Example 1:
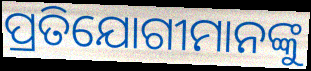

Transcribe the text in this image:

ପ୍ରତିଯୋଗୀମାନଙ୍କୁ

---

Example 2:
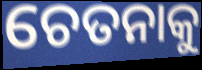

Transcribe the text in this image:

ଚେତନାକୁ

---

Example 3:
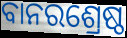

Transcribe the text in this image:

ବାନରଶ୍ରେଷ୍ଠ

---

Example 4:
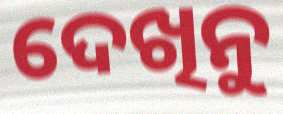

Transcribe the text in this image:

ଦେଖିନୁ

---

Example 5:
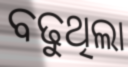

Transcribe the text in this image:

ବଢୁଥିଲା